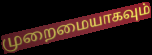
முறைமையாகவும்